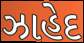
ઝાહેદ